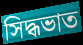
সিদ্ধভাত